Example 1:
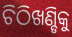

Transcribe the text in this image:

ଚିଠିଖଣ୍ଡିକୁ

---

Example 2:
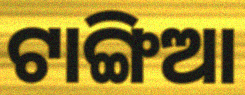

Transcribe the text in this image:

ଟାଙ୍ଗିଆ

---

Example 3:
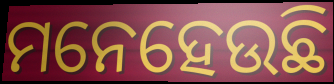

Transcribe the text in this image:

ମନେହେଉଛି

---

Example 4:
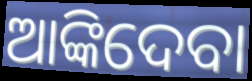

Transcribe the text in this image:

ଆଙ୍କିଦେବା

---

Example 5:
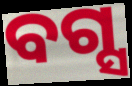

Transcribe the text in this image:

ବଗ୍ସ